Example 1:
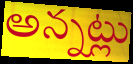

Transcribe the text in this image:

అన్నట్లు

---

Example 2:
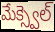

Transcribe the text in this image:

మేక్స్వెల్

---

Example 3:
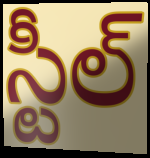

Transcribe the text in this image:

స్టీల్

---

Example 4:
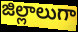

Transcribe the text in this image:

జిల్లాలుగా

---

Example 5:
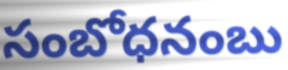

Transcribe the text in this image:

సంబోధనంబు